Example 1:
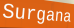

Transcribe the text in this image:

Surgana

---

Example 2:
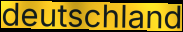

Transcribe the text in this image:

deutschland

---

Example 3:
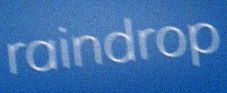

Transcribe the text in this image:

raindrop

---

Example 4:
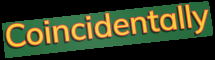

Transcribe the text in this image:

Coincidentally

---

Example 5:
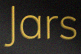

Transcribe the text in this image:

Jars